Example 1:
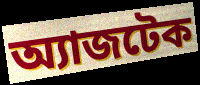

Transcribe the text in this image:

অ্যাজটেক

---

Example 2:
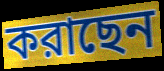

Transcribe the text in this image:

করাছেন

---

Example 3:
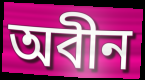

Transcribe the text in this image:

অবীন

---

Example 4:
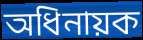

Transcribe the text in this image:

অধিনায়ক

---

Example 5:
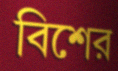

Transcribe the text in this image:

বিশের